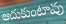
ఆదుకుంటావు